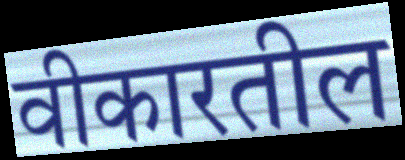
वीकारतील